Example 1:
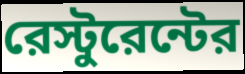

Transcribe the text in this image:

রেস্টুরেন্টের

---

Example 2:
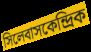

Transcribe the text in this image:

সিলেবাসকেন্দ্রিক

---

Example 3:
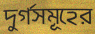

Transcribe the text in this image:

দুর্গসমূহের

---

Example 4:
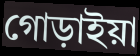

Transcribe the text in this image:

গোড়াইয়া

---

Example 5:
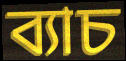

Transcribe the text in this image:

ব্যাচ